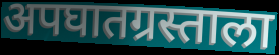
अपघातग्रस्ताला